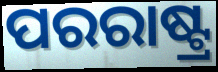
ପରରାଷ୍ଟ୍ର